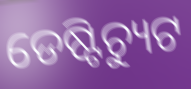
ଡେଷ୍ଟିଚ୍ୟୁଟ